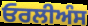
ਓਰਲੀਅੰਸ